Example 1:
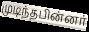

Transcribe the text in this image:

முடிந்தபின்னர்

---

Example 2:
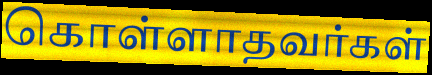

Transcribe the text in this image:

கொள்ளாதவர்கள்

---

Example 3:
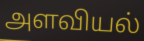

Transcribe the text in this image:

அளவியல்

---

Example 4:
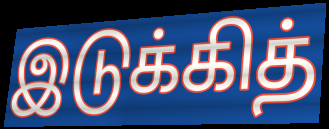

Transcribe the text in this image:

இடுக்கித்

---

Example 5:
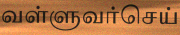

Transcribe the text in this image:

வள்ளுவர்செய்